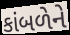
કાંબળેને